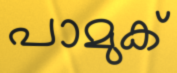
പാമുക്